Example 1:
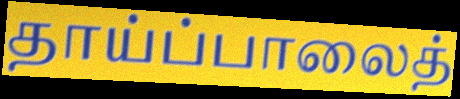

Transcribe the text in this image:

தாய்ப்பாலைத்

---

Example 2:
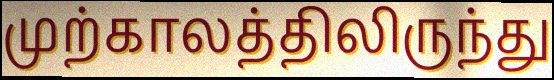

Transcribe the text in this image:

முற்காலத்திலிருந்து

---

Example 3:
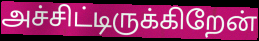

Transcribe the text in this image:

அச்சிட்டிருக்கிறேன்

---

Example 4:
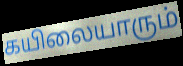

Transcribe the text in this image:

கயிலையாரும்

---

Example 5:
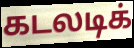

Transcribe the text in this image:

கடலடிக்